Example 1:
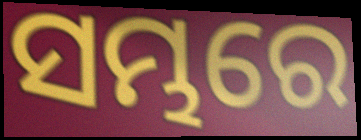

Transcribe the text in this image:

ସମ୍ଭରେ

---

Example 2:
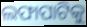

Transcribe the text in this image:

ଲଫାପାଟିକୁ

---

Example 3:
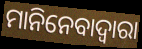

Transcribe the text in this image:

ମାନିନେବାଦ୍ୱାରା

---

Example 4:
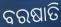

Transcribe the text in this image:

ବରଷାତି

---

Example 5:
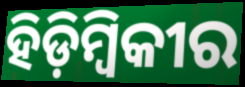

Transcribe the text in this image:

ହିଡ଼ିମ୍ବିକୀର